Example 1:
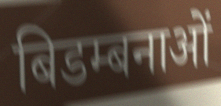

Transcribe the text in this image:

बिडम्बनाओं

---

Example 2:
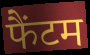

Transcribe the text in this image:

फैंटम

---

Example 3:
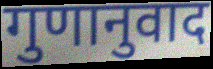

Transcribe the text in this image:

गुणानुवाद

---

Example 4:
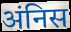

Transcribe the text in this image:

अंनिस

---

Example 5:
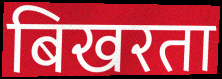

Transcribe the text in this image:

बिखरता